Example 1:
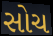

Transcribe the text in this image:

સોચ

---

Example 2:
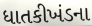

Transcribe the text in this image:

ધાતકીખંડના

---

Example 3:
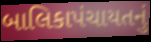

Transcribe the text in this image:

બાલિકાપંચાયતનું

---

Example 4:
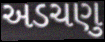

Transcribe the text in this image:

અડચણુ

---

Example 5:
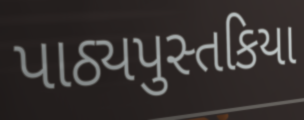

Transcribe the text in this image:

પાઠ્યપુસ્તકિયા